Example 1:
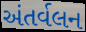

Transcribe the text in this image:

અંતર્વલન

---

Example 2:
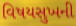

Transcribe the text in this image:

વિષયસુખની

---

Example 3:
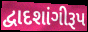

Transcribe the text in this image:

દ્વાદશાંગીરૂપ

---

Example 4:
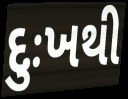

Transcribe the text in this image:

દુઃખથી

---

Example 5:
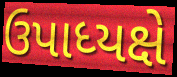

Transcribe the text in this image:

ઉપાધ્યક્ષે